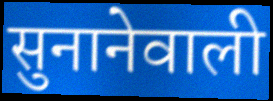
सुनानेवाली